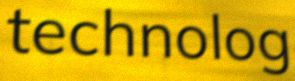
technolog